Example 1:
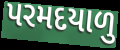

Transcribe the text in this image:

પરમદયાળુ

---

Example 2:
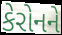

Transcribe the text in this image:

કેરોનને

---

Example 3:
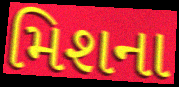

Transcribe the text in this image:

મિશના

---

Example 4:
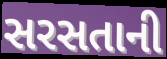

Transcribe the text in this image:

સરસતાની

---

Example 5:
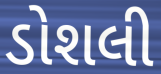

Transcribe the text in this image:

ડોશલી